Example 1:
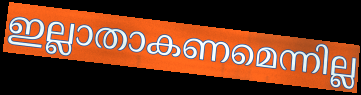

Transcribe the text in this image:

ഇല്ലാതാകണമെന്നില്ല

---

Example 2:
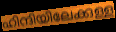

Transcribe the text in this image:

ഹിന്ദിയിലേക്കുള്ള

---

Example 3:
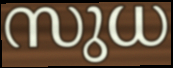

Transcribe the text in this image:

സുധ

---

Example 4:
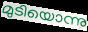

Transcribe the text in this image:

മുടിയൊന്നു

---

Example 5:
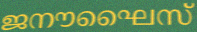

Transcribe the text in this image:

ജനൗഘൈസ്